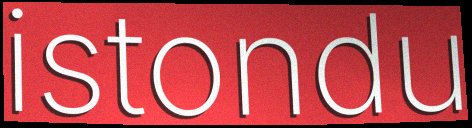
istondu